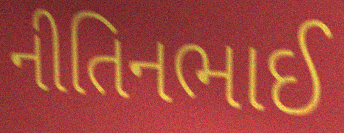
નીતિનભાઈ